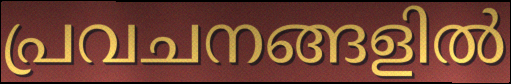
പ്രവചനങ്ങളിൽ